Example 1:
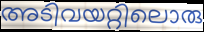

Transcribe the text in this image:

അടിവയറ്റിലൊരു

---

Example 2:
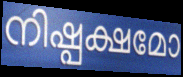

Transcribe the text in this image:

നിഷ്പക്ഷമോ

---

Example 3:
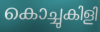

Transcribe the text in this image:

കൊച്ചുകിളി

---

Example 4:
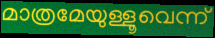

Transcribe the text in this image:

മാത്രമേയുള്ളൂവെന്ന്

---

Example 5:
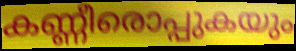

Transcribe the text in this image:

കണ്ണീരൊപ്പുകയും